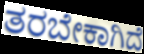
ತರಬೇಕಾಗಿದೆ